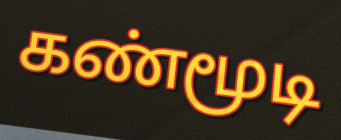
கண்மூடி